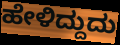
ಹೇಳಿದ್ದುದು